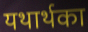
यथार्थका